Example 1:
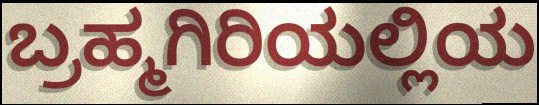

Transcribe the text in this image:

ಬ್ರಹ್ಮಗಿರಿಯಲ್ಲಿಯ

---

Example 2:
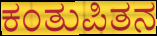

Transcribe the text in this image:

ಕಂತುಪಿತನ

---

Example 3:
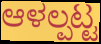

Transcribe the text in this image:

ಆಳಲ್ಪಟ್ಟ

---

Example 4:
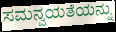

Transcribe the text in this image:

ಸಮನ್ವಯತೆಯನ್ನು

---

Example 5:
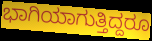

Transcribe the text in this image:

ಭಾಗಿಯಾಗುತ್ತಿದ್ದರೂ